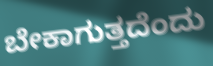
ಬೇಕಾಗುತ್ತದೆಂದು